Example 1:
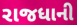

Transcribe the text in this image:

રાજધાની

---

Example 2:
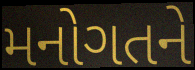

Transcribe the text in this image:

મનોગતને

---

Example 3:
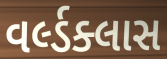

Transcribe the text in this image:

વર્લ્ડક્લાસ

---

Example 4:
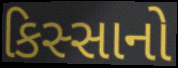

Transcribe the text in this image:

કિસ્સાનો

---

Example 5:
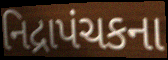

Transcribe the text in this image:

નિદ્રાપંચકના